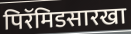
पिरॅमिडसारखा